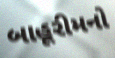
બાહૂરીમનો